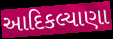
આદિકલ્યાણા